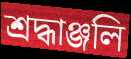
শ্রদ্ধাঞ্জলি